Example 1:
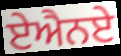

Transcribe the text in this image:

ਏਐਨਏ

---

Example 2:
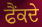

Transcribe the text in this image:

ਫੈਂਕਦੇ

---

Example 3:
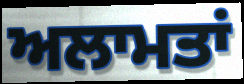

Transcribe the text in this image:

ਅਲਾਮਤਾਂ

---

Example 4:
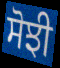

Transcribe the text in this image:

ਸੋਝੀ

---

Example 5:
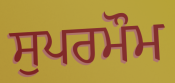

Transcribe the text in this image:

ਸੁਪਰਮੌਮ